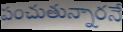
పంచుతున్నారనే